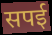
सपई